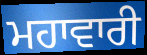
ਮਹਾਵਾਰੀ